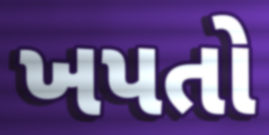
ખપતો